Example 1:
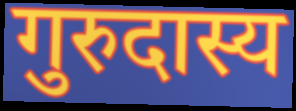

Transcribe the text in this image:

गुरुदास्य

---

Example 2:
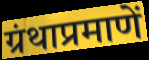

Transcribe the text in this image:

ग्रंथाप्रमाणें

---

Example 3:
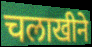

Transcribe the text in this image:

चलाखीने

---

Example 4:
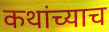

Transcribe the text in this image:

कथांच्याच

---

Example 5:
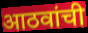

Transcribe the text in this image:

आठवांची